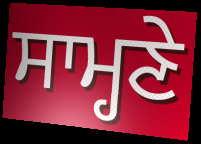
ਸਾਮ੍ਹਣੇ